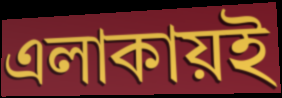
এলাকায়ই